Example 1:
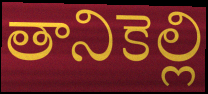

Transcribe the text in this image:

తానికెల్లి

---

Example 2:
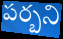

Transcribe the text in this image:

పర్బని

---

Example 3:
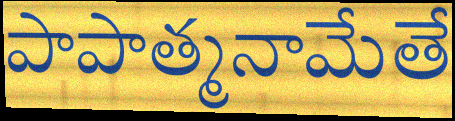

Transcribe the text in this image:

పాపాత్మనామేతే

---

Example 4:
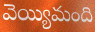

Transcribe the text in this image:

వెయ్యిమంది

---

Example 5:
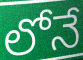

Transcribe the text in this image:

లోనే